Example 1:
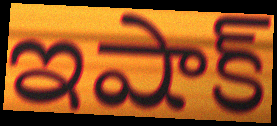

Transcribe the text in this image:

ఇషాక్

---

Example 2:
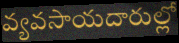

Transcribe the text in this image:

వ్యవసాయదారుల్లో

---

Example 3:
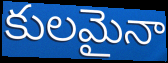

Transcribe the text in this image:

కులమైనా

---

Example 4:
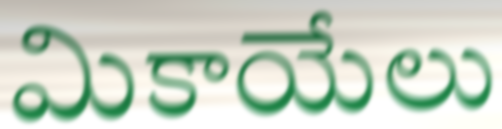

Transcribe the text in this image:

మికాయేలు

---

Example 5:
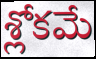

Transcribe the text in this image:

శ్లోకమే